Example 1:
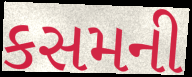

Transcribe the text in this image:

કસમની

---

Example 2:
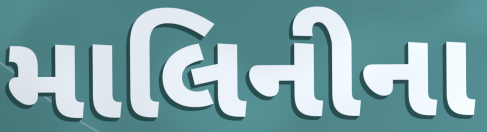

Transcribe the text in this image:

માલિનીના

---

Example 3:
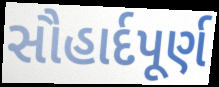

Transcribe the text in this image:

સૌહાર્દપૂર્ણ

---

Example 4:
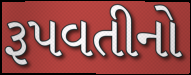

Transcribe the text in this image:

રૂપવતીનો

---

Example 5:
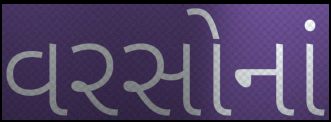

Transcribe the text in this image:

વરસોનાં